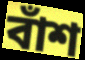
বাঁশ